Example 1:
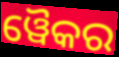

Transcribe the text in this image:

ୱୈକର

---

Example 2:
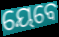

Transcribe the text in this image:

ୟେବେ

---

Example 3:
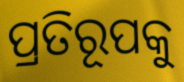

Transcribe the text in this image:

ପ୍ରତିରୂପକୁ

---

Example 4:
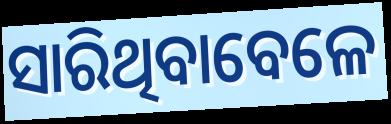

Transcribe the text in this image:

ସାରିଥିବାବେଳେ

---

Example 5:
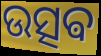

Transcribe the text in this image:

ଉତ୍ସଵ